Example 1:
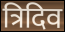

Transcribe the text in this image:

त्रिदिव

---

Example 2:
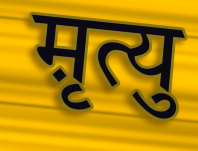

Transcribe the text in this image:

म़ृत्यु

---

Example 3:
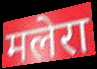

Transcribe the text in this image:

मलेरा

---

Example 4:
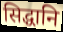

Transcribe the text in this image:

सिद्धानि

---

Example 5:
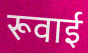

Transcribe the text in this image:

रूवाई